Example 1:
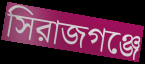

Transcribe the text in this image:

সিরাজগঞ্জে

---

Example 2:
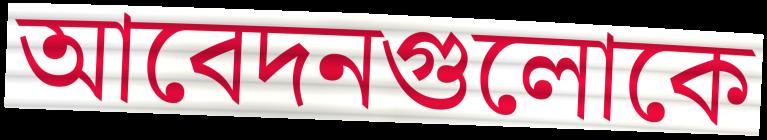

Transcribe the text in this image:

আবেদনগুলোকে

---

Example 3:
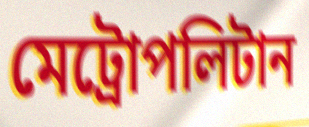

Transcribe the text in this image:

মেট্রোপলিটান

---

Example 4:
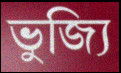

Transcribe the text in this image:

ভুজ্যি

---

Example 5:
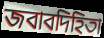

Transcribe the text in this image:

জবাবদিহিতা